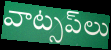
వాట్సప్‌లు